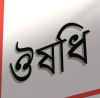
ঔষধি